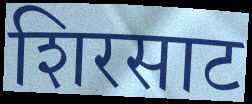
शिरसाट